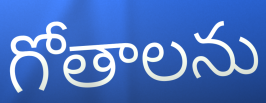
గోతాలను